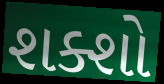
શક્શો